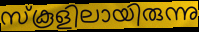
സ്കൂളിലായിരുന്നു